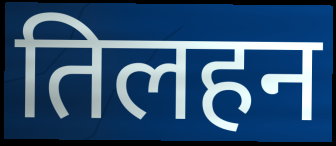
तिलहन